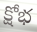
క్షోభ